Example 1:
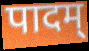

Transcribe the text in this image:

पादम्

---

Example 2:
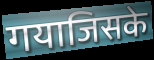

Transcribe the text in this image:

गयाजिसके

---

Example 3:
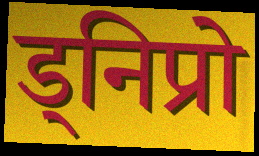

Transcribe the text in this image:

ड्निप्रो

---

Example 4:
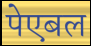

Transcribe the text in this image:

पेएबल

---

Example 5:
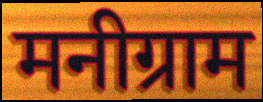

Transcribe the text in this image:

मनीग्राम